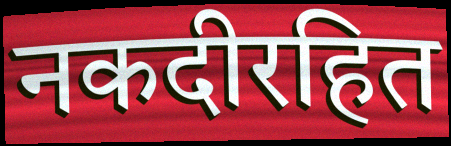
नकदीरहित